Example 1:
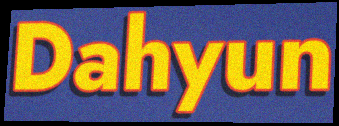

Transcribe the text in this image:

Dahyun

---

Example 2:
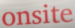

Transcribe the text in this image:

onsite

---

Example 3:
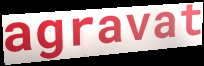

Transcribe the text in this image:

agravat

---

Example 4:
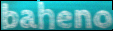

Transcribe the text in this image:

baheno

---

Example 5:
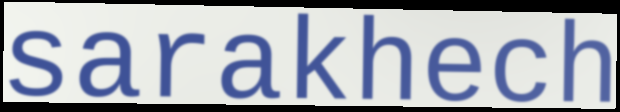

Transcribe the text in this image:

sarakhech